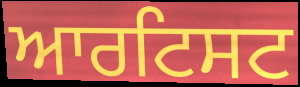
ਆਰਟਿਸਟ